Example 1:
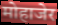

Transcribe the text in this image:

मोहाजेर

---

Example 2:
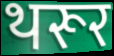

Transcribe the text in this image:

थरूर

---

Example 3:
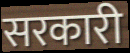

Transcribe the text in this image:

सरकारी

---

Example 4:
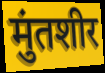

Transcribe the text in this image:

मुंतशीर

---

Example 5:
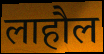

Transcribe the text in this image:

लाहौल